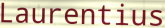
Laurentius